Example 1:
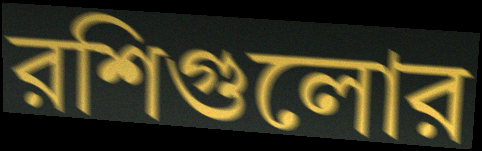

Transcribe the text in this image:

রশিগুলোর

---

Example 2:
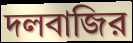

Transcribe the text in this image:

দলবাজির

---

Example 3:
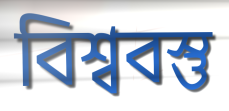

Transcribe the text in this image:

বিশ্ববস্তু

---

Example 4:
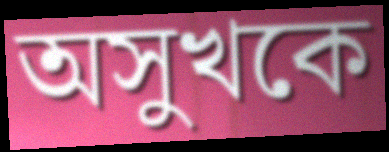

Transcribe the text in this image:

অসুখকে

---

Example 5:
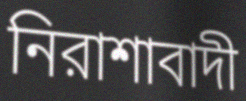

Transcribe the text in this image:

নিরাশাবাদী